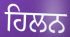
ਹਿਲਨ